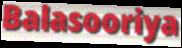
Balasooriya